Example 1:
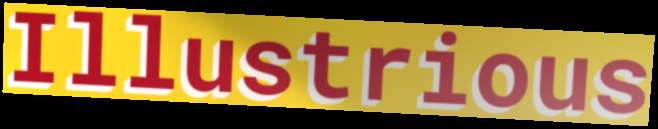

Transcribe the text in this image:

Illustrious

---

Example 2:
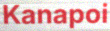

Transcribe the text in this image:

Kanapoi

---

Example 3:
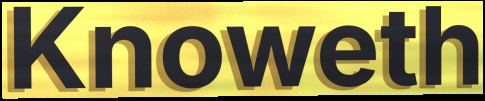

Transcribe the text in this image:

Knoweth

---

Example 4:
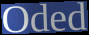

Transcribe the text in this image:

Oded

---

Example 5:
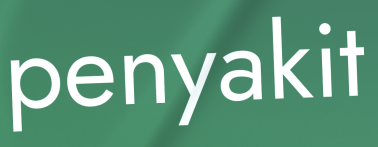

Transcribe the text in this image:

penyakit